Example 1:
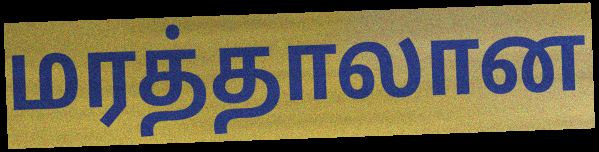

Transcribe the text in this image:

மரத்தாலான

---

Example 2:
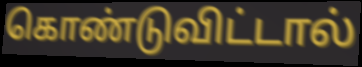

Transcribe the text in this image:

கொண்டுவிட்டால்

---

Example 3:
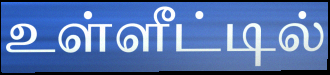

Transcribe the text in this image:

உள்ளீட்டில்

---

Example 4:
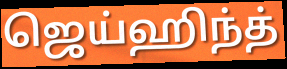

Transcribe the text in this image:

ஜெய்ஹிந்த்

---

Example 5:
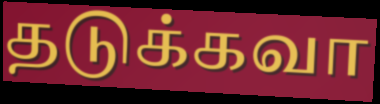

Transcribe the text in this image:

தடுக்கவா